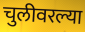
चुलीवरल्या